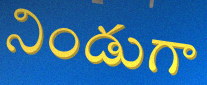
నిండుగా